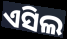
ଏସିଲ